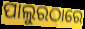
ପାଲୁରଠାରେ